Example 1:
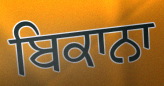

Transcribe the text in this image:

ਬਿਕਾਨਾ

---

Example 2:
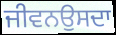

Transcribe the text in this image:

ਜੀਵਨਉਸਦਾ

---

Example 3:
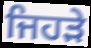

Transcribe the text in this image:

ਜਿਹਡ਼ੇ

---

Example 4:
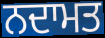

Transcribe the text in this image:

ਨਦਾਮਤ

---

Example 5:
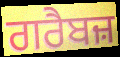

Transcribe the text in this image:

ਗਰੈਬਜ਼